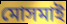
মোসমাই